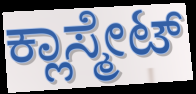
ಕ್ಲಾಸ್ಮೇಟ್